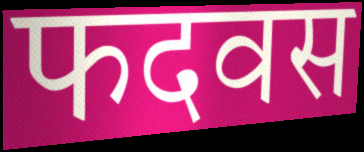
फदवस